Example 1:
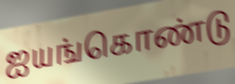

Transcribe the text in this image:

ஐயங்கொண்டு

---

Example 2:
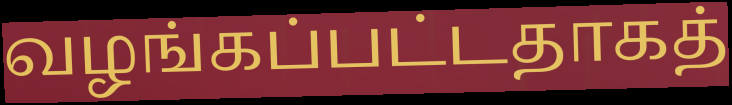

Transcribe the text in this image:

வழங்கப்பட்டதாகத்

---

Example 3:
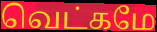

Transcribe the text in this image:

வெட்கமே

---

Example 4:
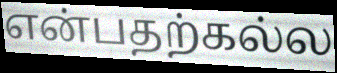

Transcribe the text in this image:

என்பதற்கல்ல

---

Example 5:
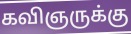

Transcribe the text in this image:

கவிஞருக்கு